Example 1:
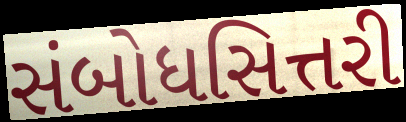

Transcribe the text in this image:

સંબોધસિત્તરી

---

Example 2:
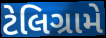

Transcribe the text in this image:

ટેલિગ્રામે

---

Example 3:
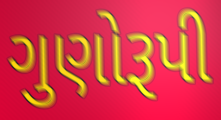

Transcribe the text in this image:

ગુણોરૂપી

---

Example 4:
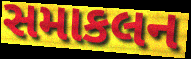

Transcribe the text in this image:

સમાકલન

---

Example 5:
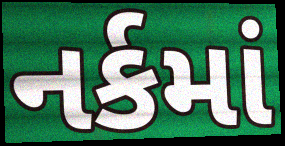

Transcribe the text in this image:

નર્કમાં